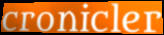
cronicler